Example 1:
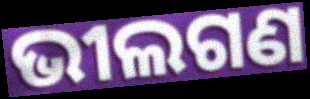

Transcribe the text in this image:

ଭୀଲଗଣ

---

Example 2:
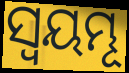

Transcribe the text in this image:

ସ୍ଵୟମ୍ଭୂ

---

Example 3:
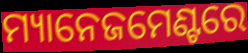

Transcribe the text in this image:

ମ୍ୟାନେଜମେଣ୍ଟରେ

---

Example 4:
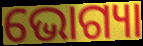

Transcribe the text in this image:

ଭୋଗ୍ୟା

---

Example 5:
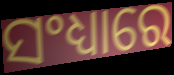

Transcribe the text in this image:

ସଂଧ୍ଯାରେ